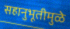
सहानुभूतीमुळे